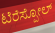
ಟೆರೆಸ್ಪೋಲ್